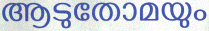
ആടുതോമയും